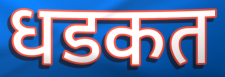
धडकत